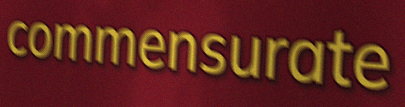
commensurate